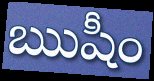
ఋషీం